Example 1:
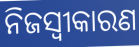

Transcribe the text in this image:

ନିଜସ୍ବୀକାରଣ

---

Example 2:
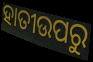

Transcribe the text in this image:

ହାତୀଉପରୁ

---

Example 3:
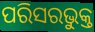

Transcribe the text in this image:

ପରିସରଭୁକ୍ତ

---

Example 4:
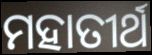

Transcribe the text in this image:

ମହାତୀର୍ଥ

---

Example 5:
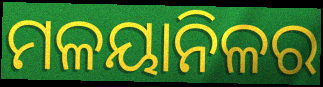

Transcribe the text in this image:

ମଳୟାନିଳର